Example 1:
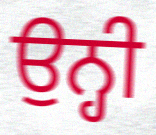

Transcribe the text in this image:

ਉਨ੍ਹੀ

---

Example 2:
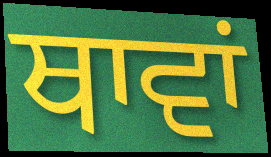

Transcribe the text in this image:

ਥਾਵਾਂ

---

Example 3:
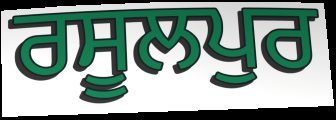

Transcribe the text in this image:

ਰਸੂਲਪੁਰ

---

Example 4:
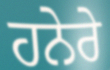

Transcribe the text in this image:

ਹਨੇਰੇ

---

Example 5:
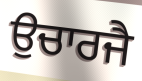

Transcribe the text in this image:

ਉਚਾਰਜੈ